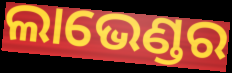
ଲାଭେଣ୍ଡର